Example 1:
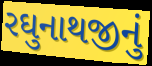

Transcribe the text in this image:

રઘુનાથજીનું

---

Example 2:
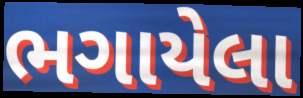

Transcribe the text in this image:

ભગાયેલા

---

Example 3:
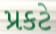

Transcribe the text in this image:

પ્રકટે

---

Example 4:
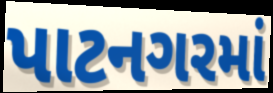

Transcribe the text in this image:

પાટનગરમાં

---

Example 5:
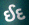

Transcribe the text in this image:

ઈદ